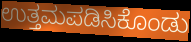
ಉತ್ತಮಪಡಿಸಿಕೊಂಡು